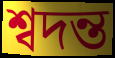
শ্বদন্ত